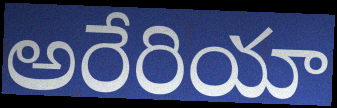
అరేరియా